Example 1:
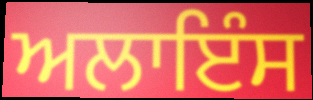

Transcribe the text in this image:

ਅਲਾਇੰਸ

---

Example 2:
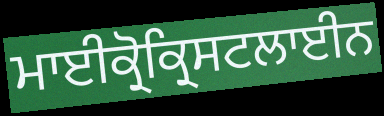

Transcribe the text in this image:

ਮਾਈਕ੍ਰੋਕ੍ਰਿਸਟਲਾਈਨ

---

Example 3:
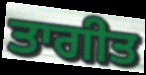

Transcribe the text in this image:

ਤਾਗੀਤ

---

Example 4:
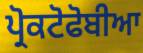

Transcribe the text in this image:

ਪ੍ਰੋਕਟੋਫੋਬੀਆ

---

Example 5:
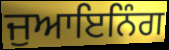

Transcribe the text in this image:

ਜੁਆਇਨਿੰਗ